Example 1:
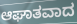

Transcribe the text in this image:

ಆಘಾತವಾದ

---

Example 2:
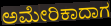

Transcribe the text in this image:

ಅಮೇರಿಕಾದಾಗ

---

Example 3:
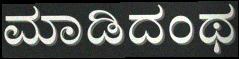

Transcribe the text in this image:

ಮಾಡಿದಂಥ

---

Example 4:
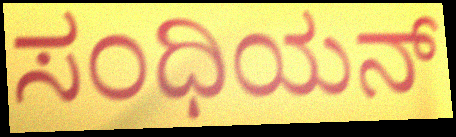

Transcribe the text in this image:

ಸಂಧಿಯನ್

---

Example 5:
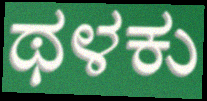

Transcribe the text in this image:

ಥಳಕು